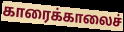
காரைக்காலைச்